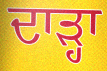
ਦਾੜ੍ਹਾ